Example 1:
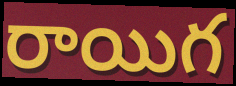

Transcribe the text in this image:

రాయిగ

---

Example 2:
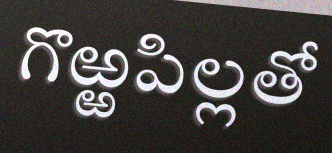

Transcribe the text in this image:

గొఱ్ఱపిల్లతో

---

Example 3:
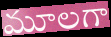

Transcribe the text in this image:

మూలగా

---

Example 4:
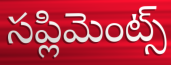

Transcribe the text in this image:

సప్లిమెంట్స్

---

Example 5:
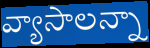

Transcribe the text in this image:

వ్యాసాలన్నా